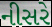
નીસરે